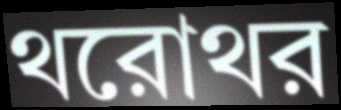
থরোথর